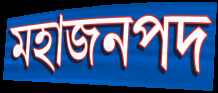
মহাজনপদ